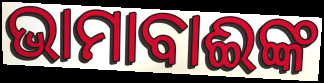
ଭାମାବାଈଙ୍କ